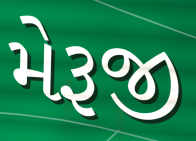
મેરૂજી